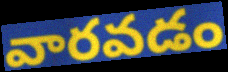
వారవడం